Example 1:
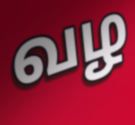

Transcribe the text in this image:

வழ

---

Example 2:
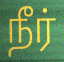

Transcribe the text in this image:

நீர்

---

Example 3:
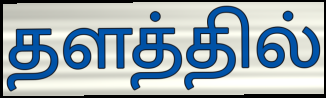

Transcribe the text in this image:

தளத்தில்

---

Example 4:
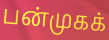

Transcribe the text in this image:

பன்முகக்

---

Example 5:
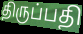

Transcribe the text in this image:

திருப்பதி